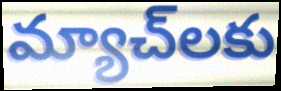
మ్యాచ్‌లకు